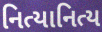
નિત્યાનિત્ય